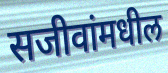
सजीवांमधील